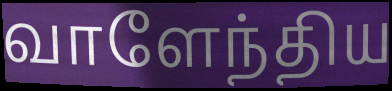
வாளேந்திய